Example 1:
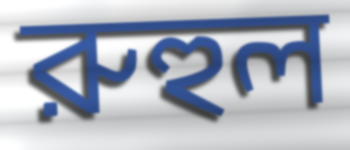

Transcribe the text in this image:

রুহুল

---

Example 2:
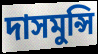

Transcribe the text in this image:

দাসমুন্সি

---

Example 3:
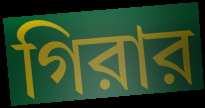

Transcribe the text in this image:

গিরার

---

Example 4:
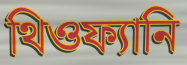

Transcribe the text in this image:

থিওফ্যানি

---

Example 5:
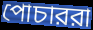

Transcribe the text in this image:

পোচাররা